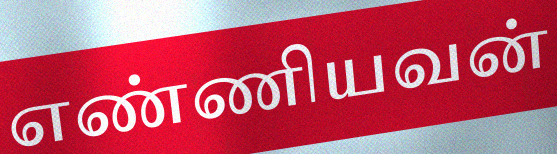
எண்ணியவன்